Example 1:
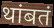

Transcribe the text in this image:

थांबतं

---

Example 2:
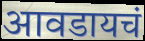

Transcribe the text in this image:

आवडायचं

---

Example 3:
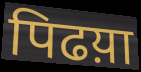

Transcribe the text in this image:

पिढय़ा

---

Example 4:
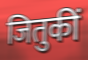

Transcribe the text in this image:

जितुकीं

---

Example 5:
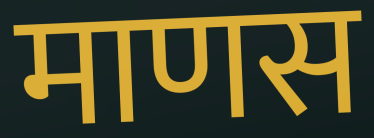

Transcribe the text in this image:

माणस